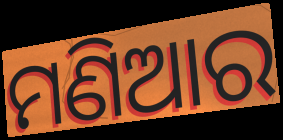
ମଣିଆର